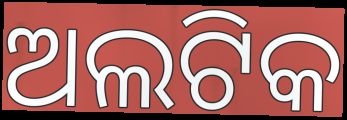
ଅଲଟିକ